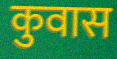
कुवास